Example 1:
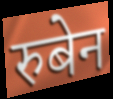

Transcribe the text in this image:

रुबेन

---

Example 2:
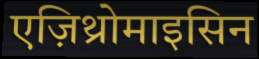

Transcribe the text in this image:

एज़िथ्रोमाइसिन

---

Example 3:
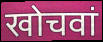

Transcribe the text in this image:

खोचवां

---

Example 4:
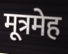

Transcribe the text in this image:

मूत्रमेह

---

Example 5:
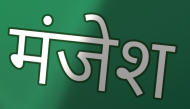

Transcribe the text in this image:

मंजेश